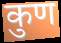
कुण